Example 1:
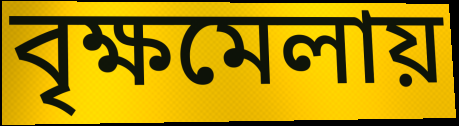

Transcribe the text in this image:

বৃক্ষমেলায়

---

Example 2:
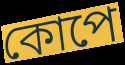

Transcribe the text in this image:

কোপে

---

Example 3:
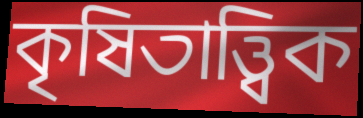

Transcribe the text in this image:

কৃষিতাত্ত্বিক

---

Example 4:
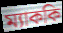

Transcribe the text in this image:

ম্যাককি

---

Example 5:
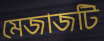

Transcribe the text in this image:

মেজাজটি